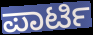
ಪಾರ್ಟಿ